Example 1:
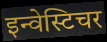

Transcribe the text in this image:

इन्वेस्टिचर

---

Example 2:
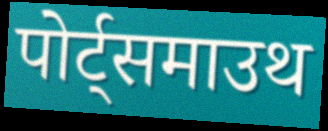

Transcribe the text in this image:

पोर्ट्समाउथ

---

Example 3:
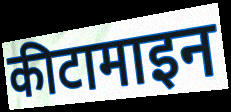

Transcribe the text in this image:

कीटामाइन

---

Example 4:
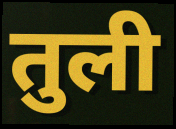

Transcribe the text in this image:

तुली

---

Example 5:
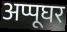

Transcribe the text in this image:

अप्पूघर